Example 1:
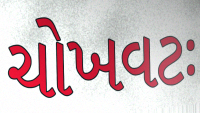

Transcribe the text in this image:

ચોખવટઃ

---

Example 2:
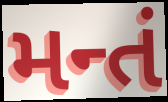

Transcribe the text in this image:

મન્તં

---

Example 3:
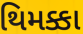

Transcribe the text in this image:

થિમક્કા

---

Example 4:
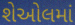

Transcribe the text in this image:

શેઓલમાં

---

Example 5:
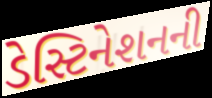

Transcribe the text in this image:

ડેસ્ટિનેશનની